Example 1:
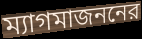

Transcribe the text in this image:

ম্যাগমাজননের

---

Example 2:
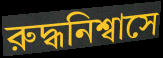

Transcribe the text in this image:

রুদ্ধনিশ্বাসে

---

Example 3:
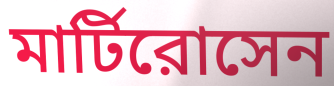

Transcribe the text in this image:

মার্টিরোসেন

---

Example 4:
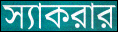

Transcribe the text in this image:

স্যাকরার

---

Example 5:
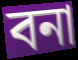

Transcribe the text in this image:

বনা